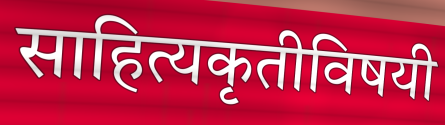
साहित्यकृतीविषयी